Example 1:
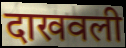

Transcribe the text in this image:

दाखवली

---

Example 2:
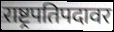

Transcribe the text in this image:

राष्ट्रपतिपदावर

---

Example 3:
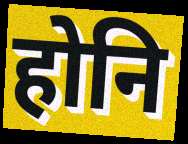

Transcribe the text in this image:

होनि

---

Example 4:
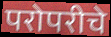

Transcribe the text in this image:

परोपरीचे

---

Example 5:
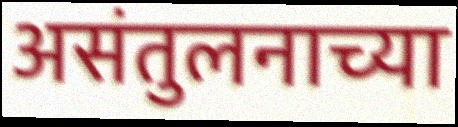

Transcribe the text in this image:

असंतुलनाच्या